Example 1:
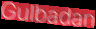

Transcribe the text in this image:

Gulbadan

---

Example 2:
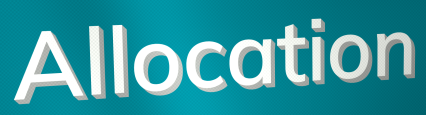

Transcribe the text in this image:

Allocation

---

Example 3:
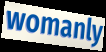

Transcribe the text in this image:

womanly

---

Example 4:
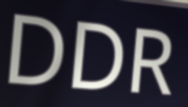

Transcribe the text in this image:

DDR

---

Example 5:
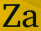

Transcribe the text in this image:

Za